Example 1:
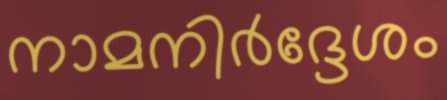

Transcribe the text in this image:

നാമനിർദ്ദേശം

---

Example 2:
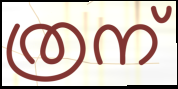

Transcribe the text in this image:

ത്രന്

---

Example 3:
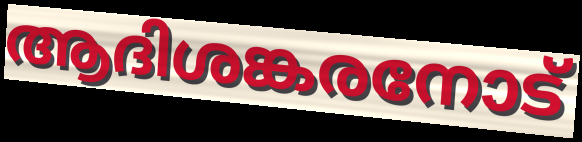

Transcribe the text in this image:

ആദിശങ്കരനോട്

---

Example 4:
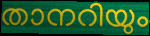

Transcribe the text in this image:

താനറിയും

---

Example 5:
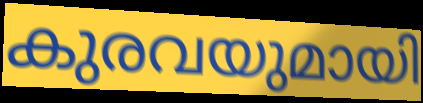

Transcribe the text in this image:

കുരവയുമായി